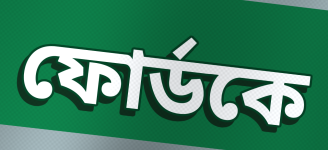
ফোর্ডকে